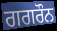
ਗਗਰੌਨ